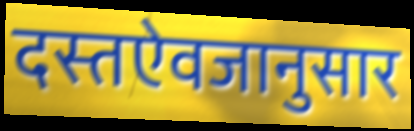
दस्तऐवजानुसार